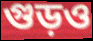
গুড়ও